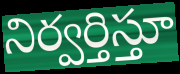
నిర్వర్తిస్తూ